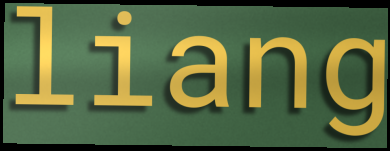
liang